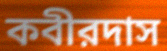
কবীরদাস